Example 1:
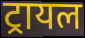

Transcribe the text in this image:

ट्रायल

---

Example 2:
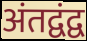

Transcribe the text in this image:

अंतद्वंद्व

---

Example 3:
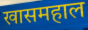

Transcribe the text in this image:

खासमहाल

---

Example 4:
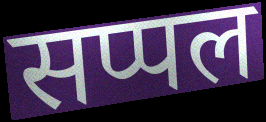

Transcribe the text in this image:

सप्पल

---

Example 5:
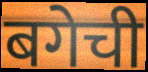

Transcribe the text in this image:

बगेची